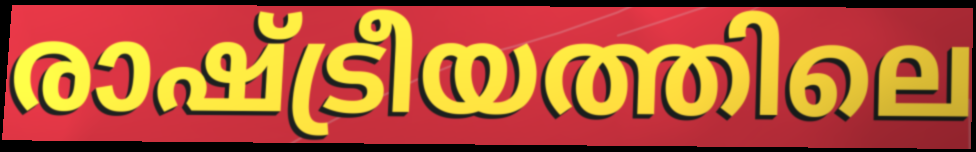
രാഷ്ട്രീയത്തിലെ